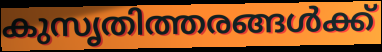
കുസൃതിത്തരങ്ങൾക്ക്